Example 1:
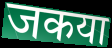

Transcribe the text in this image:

जकया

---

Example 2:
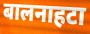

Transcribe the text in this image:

बालनाहटा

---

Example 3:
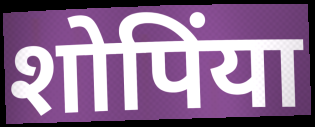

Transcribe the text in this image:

शोपिंया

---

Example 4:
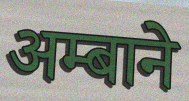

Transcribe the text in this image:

अम्बाने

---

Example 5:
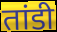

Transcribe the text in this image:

तांडी